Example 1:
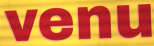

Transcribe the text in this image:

venu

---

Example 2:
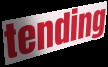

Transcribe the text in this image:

tending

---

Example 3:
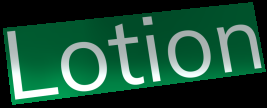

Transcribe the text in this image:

Lotion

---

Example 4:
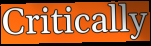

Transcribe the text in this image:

Critically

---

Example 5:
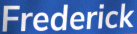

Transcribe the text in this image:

Frederick